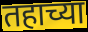
तहाच्या